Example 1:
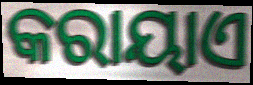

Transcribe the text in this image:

କରାୟାଏ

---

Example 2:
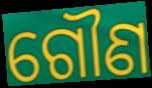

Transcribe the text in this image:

ଗୌଣ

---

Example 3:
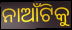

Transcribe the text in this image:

ନାଆଁଟିକୁ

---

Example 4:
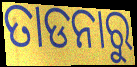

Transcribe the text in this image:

ତାଡନାରୁ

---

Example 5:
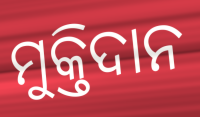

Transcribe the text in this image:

ମୁକ୍ତିଦାନ